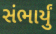
સંભાર્યું